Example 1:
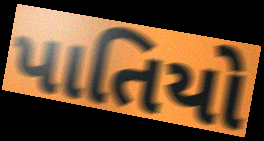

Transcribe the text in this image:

પાતિયો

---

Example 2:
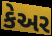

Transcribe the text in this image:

કેઅર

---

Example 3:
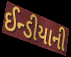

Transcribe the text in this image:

ઈન્ડીયાની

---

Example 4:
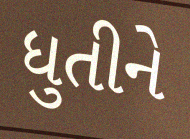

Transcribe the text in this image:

ધુતીને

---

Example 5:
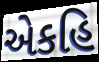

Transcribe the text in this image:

એકહિ